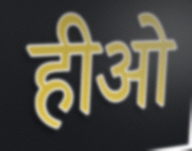
हीओ